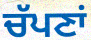
ਚੱਪਣਾਂ